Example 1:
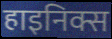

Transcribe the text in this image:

हाइनिक्स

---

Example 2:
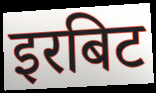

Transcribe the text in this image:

इरबिट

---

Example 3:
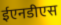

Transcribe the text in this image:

ईएनडीएस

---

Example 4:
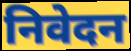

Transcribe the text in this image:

निवेदन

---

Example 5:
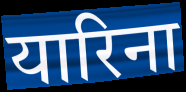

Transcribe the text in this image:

यारिना